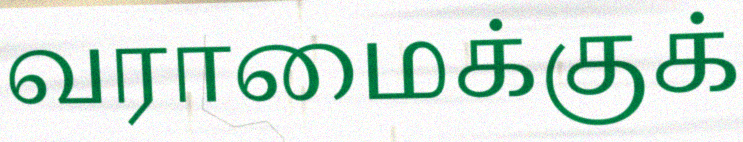
வராமைக்குக்